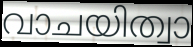
വാചയിത്വാ